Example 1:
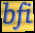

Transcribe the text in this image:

bfi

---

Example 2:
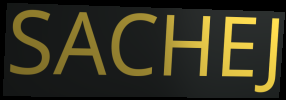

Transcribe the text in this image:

SACHEJ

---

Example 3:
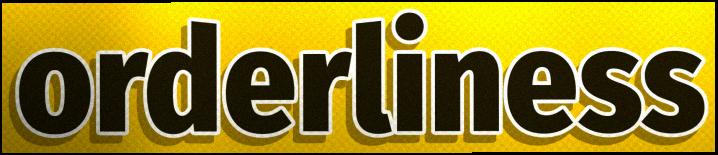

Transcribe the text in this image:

orderliness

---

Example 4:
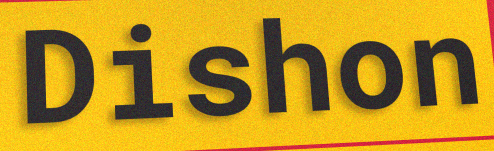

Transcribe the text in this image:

Dishon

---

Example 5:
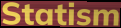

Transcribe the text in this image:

Statism